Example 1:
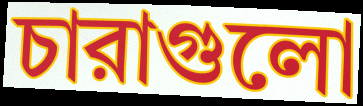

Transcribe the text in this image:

চারাগুলো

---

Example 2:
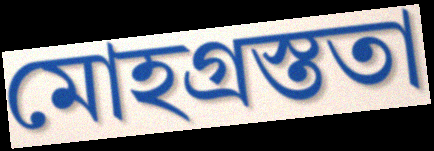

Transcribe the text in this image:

মোহগ্রস্ততা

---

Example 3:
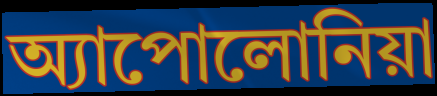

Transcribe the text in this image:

অ্যাপোলোনিয়া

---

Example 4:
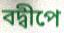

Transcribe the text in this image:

বদ্বীপে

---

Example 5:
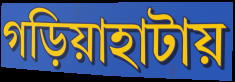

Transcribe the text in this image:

গড়িয়াহাটায়